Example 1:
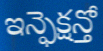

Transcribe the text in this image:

ఇన్ఫెక్షన్తో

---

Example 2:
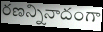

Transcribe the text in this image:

రణన్నినాదంగా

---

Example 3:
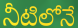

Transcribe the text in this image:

నీటిలోనే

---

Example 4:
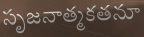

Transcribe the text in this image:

సృజనాత్మకతనూ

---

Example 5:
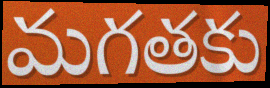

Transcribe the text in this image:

మగతకు